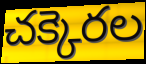
చక్కెరల